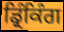
ਡ੍ਰਿੰਕਿੰਗ